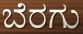
ಬೆರಗು